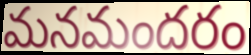
మనమందరం